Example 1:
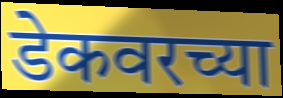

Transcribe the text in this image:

डेकवरच्या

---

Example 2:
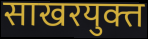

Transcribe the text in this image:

साखरयुक्त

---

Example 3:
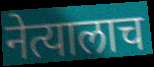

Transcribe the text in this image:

नेत्यालाच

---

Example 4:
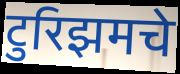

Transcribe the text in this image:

टुरिझमचे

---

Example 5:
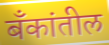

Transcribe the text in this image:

बॅंकांतील